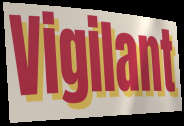
Vigilant